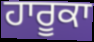
ਹਾਰੂਕਾ